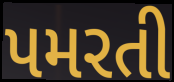
પમરતી